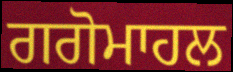
ਗਗੋਮਾਹਲ